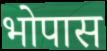
भोपास